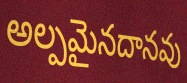
అల్పమైనదానవు